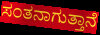
ಸಂತನಾಗುತ್ತಾನೆ